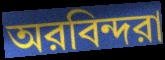
অরবিন্দরা